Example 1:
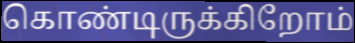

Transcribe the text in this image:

கொண்டிருக்கிறோம்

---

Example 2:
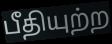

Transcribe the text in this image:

பீதியுற்ற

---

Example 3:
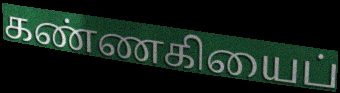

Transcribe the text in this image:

கண்ணகியைப்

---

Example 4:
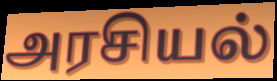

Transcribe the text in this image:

அரசியல்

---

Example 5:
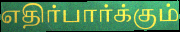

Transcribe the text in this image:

எதிர்பார்க்கும்